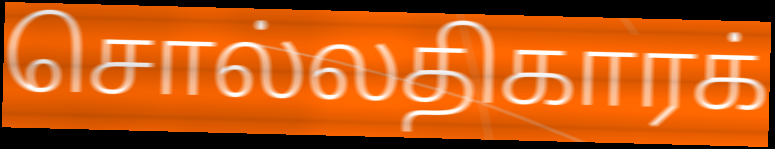
சொல்லதிகாரக்